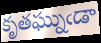
కృతఘ్నుఁడా